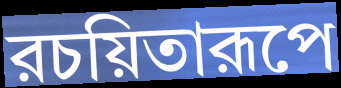
রচয়িতারূপে